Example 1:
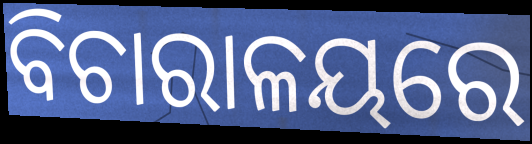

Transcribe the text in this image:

ବିଚାରାଳୟରେ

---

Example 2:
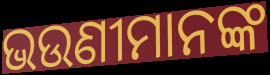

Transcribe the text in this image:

ଭଉଣୀମାନଙ୍କ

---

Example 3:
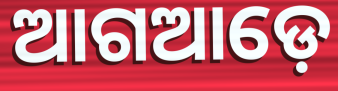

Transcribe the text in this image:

ଆଗଆଡ଼େ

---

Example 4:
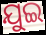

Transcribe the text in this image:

ଯୁଇ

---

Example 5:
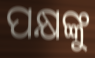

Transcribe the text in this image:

ପକ୍ଷଙ୍କୁ